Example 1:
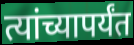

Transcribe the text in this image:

त्यांच्यापर्यंत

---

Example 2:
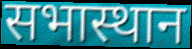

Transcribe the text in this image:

सभास्थान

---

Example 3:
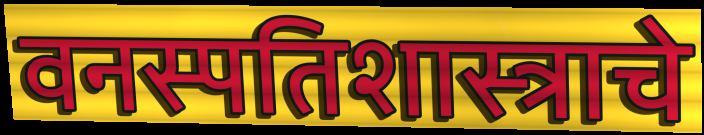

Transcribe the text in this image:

वनस्पतिशास्त्राचे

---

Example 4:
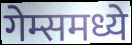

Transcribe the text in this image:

गेम्समध्ये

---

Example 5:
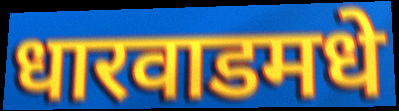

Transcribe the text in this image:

धारवाडमधे